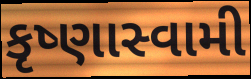
કૃષ્ણાસ્વામી